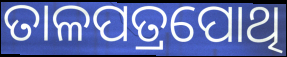
ତାଳପତ୍ରପୋଥି